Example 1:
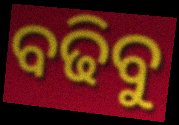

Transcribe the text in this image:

ବଢିବୁ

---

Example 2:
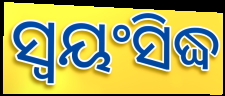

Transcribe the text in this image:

ସ୍ୱୟଂସିଦ୍ଧ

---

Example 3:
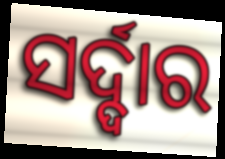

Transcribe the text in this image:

ସର୍ଦ୍ଦାର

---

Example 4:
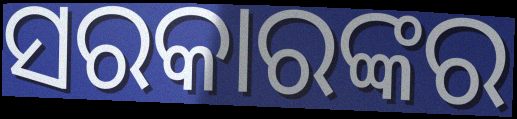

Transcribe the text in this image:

ସରକାରଙ୍କର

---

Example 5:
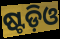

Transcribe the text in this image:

ଷ୍ଟଡ଼ିଓ